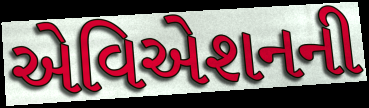
એવિએશનની